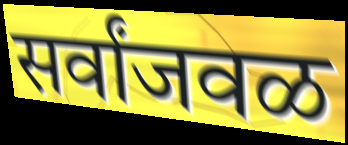
सर्वांजवळ